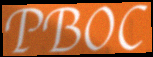
PBOC